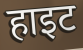
हाइट